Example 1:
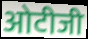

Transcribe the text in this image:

ओटीजी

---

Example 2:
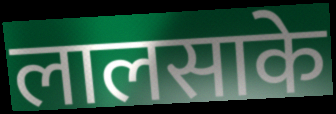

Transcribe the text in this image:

लालसाके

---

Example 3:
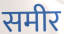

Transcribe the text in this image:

समीर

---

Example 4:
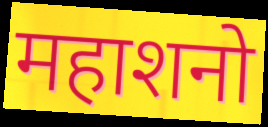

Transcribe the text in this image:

महाशनो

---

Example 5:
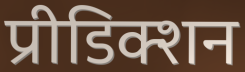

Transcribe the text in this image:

प्रीडिक्शन